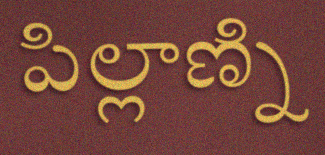
పిల్లాణ్ని